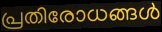
പ്രതിരോധങ്ങൾ